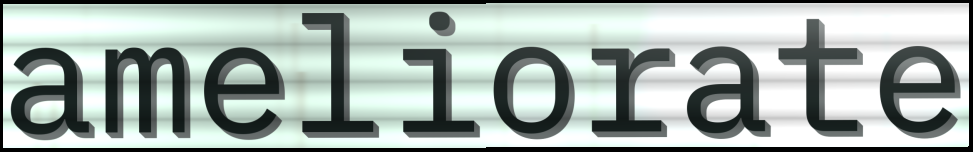
ameliorate